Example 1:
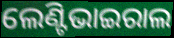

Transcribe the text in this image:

ଲେଣ୍ଟିଭାଇରାଲ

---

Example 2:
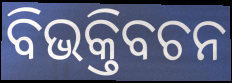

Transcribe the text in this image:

ବିଭକ୍ତିବଚନ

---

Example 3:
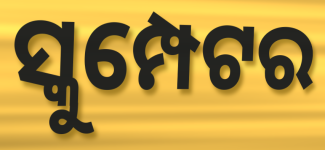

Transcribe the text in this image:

ସ୍କୁମ୍ପେଟର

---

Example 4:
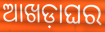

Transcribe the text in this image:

ଆଖଡ଼ାଘର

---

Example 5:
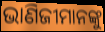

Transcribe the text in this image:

ଭାଣିଜୀମାନଙ୍କୁ